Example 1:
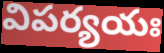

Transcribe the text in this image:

విపర్యయః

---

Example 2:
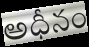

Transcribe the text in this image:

అధీనం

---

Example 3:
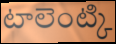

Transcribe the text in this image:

టాలెంట్కి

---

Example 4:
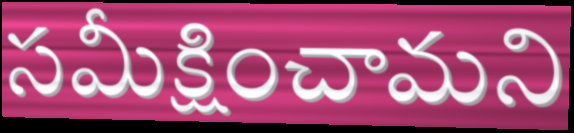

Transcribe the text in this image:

సమీక్షించామని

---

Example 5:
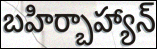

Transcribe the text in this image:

బహిర్బాహ్యాన్